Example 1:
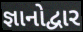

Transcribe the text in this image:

જ્ઞાનોદ્વાર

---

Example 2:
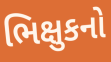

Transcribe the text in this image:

ભિક્ષુકનો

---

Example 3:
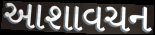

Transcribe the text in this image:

આશાવચન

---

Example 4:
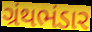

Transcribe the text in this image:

ગ્રંથભંડાર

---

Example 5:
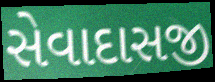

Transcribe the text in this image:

સેવાદાસજી